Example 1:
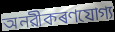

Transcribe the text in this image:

অনৱীকৰণযোগ্য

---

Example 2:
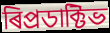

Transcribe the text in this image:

ৰিপ্ৰডাক্টিভ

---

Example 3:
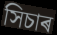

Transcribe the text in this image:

সিচাৰ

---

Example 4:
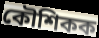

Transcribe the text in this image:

কৌশিকক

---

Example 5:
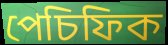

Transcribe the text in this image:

পেচিফিক